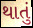
થાતું